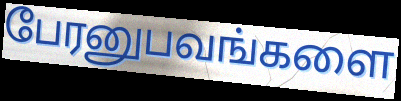
பேரனுபவங்களை